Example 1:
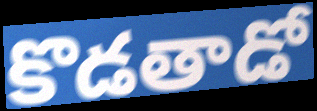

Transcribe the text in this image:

కొడతాడో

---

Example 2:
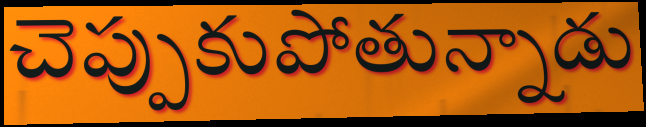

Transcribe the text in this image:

చెప్పుకుపోతున్నాడు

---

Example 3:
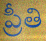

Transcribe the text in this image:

ప్రీతి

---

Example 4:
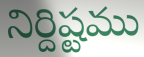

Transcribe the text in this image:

నిర్దిష్టము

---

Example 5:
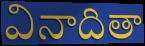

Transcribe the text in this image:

వినాదితా